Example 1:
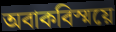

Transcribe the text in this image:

অবাকবিস্ময়ে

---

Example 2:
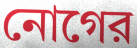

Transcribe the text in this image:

নোগের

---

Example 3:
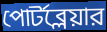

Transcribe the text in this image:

পোর্টব্লেয়ার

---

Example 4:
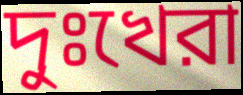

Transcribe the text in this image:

দুঃখেরা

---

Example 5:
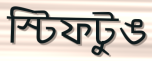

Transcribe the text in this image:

স্টিফটুঙ